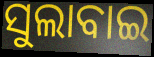
ସୁଲାବାଇ